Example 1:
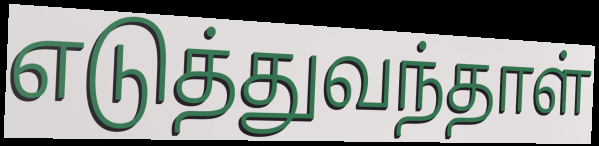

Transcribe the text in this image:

எடுத்துவந்தாள்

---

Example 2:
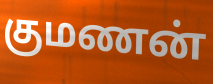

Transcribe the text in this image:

குமணன்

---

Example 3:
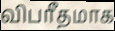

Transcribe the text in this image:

விபரீதமாக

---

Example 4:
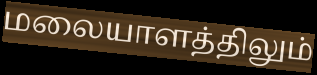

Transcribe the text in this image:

மலையாளத்திலும்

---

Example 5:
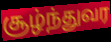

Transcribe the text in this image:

சூழ்ந்துவர